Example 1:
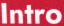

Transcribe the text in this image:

Intro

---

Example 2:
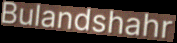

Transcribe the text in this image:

Bulandshahr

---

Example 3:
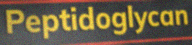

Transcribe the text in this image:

Peptidoglycan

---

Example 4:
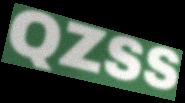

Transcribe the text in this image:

QZSS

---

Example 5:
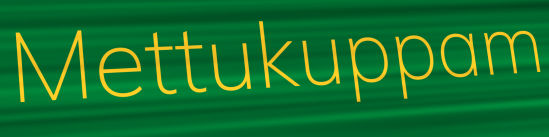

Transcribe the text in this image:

Mettukuppam